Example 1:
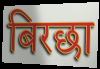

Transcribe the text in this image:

बिरछा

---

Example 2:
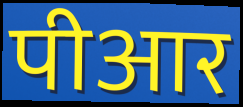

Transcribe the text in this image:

पीआर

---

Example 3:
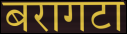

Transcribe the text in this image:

बरागटा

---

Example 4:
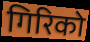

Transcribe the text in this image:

गिरिको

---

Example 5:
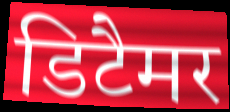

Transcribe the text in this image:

डिटैमर